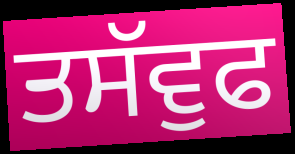
ਤਸੱਵੁਫ